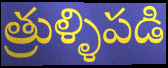
త్రుళ్ళిపడి